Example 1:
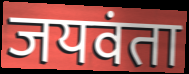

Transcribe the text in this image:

जयवंता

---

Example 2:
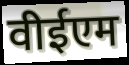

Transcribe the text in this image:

वीईएम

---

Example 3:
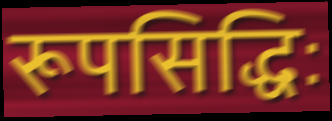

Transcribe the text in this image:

रूपसिद्धिः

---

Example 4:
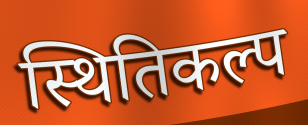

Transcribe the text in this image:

स्थितिकल्प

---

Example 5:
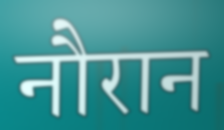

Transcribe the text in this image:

नौरान